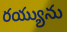
రయ్యును